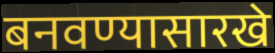
बनवण्यासारखे